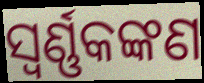
ସ୍ୱର୍ଣ୍ଣକଙ୍କଣ